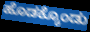
ಹೊಡಕ್ಕೊಂಡು